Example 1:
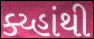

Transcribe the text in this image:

ક્ય્હાંથી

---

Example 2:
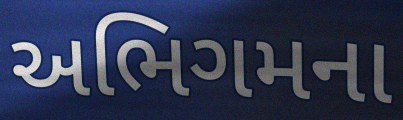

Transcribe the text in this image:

અભિગમના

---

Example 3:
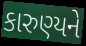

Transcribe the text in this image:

કારુણ્યને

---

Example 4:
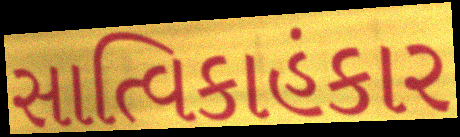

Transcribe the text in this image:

સાત્વિકાહંકાર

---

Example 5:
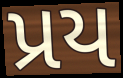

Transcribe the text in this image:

પ્રય